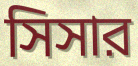
সিসার